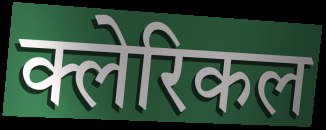
क्लेरिकल